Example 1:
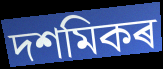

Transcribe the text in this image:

দশমিকৰ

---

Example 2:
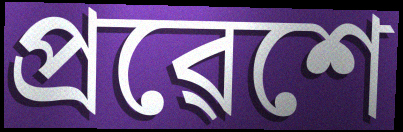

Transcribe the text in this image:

প্ৰৱেশে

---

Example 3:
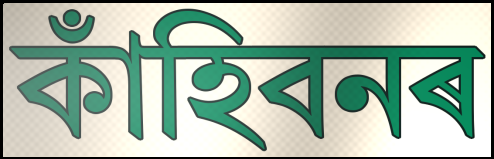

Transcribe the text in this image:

কাঁহিবনৰ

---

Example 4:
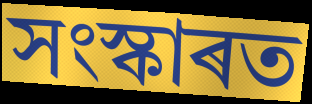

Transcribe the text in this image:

সংস্কাৰত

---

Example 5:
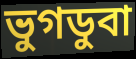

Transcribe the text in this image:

ভুগডুবা